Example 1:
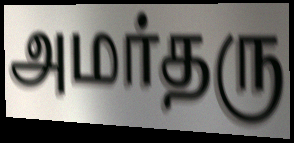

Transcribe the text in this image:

அமர்தரு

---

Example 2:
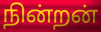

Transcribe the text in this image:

நின்றன்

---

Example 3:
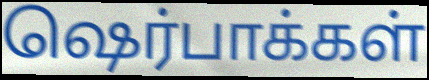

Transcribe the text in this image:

ஷெர்பாக்கள்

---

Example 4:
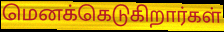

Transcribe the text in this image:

மெனக்கெடுகிறார்கள்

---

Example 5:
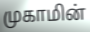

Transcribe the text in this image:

முகாமின்